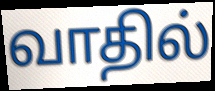
வாதில்